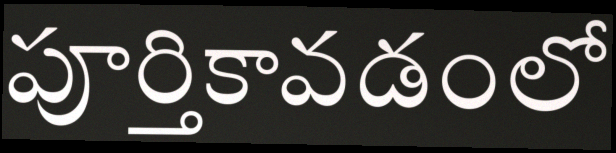
పూర్తికావడంలో